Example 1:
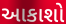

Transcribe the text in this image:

આકાશો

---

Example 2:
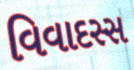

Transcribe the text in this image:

વિવાદસ્સ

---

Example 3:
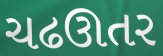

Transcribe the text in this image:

ચઢઊતર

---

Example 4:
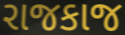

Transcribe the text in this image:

રાજકાજ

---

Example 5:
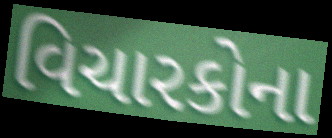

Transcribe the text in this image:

વિચારકોના